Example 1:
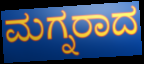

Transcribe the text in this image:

ಮಗ್ನರಾದ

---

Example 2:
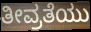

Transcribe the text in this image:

ತೀವ್ರತೆಯು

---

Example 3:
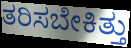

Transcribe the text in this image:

ತರಿಸಬೇಕಿತ್ತು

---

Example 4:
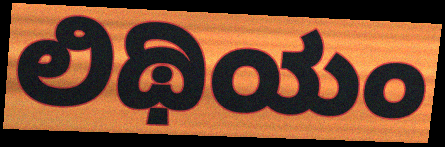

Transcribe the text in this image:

ಲಿಥಿಯಂ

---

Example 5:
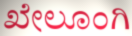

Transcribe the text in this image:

ಖೇಲೂಂಗಿ